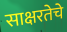
साक्षरतेचे